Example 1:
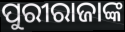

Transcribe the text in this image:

ପୁରୀରାଜାଙ୍କ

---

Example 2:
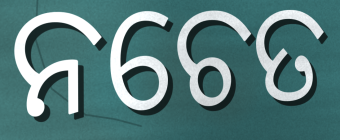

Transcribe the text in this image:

ନଚେତ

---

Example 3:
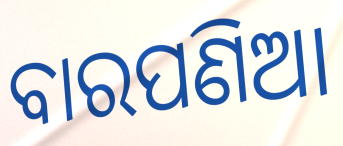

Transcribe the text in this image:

ବାରପଣିଆ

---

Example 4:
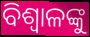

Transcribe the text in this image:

ବିଶ୍ୱାଳଙ୍କୁ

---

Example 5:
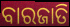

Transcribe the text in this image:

ବାରଜାତି